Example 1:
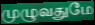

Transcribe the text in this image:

முழுவதுமே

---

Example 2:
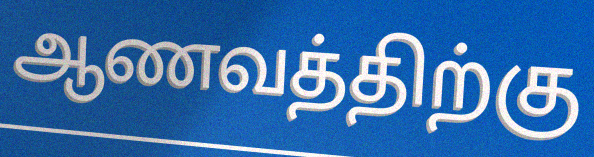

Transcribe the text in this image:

ஆணவத்திற்கு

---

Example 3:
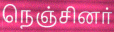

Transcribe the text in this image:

நெஞ்சினர்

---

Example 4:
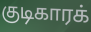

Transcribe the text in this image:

குடிகாரக்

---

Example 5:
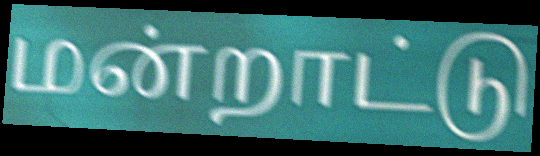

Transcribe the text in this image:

மன்றாட்டு